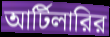
আর্টিলারির